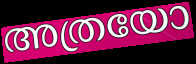
അത്രയോ